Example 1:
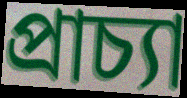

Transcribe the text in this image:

প্ৰাচ্যা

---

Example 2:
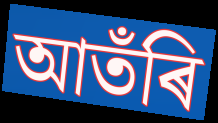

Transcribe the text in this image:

আতঁৰি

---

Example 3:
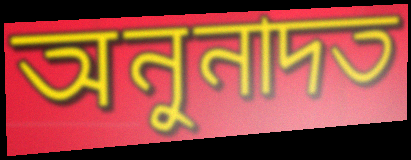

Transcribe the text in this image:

অনুনাদত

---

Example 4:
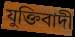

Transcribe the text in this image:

যুক্তিবাদী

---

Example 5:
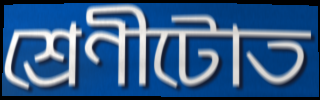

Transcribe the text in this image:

শ্ৰেণীটোত